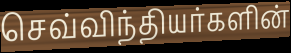
செவ்விந்தியர்களின்